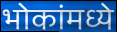
भोकांमध्ये